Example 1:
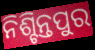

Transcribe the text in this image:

ନିଶ୍ଚିନ୍ତପୁର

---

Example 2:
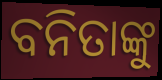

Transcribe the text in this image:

ବନିତାଙ୍କୁ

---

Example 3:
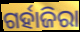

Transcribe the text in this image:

ଗର୍ହାଜିରା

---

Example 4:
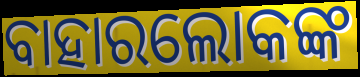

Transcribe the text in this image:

ବାହାରଲୋକଙ୍କ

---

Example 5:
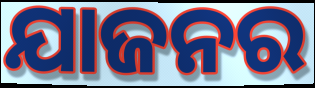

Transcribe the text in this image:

ଯାଜନର